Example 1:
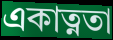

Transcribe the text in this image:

একাত্নতা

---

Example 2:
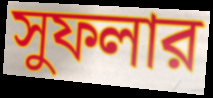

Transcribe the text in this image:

সুফলার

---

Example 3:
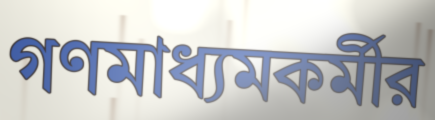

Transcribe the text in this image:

গণমাধ্যমকর্মীর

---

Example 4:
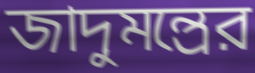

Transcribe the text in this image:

জাদুমন্ত্রের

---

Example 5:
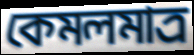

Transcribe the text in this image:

কেমলমাত্র